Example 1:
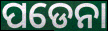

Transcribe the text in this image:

ପଡେନା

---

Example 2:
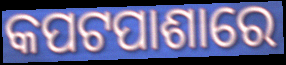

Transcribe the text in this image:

କପଟପାଶାରେ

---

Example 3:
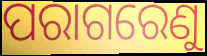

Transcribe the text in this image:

ପରାଗରେଣୁ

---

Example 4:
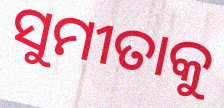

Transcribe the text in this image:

ସୁମୀତାକୁ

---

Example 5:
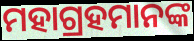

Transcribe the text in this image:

ମହାଗ୍ରହମାନଙ୍କ